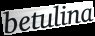
betulina